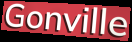
Gonville